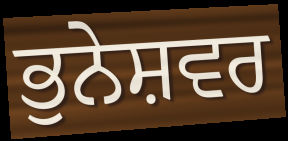
ਭੁਨੇਸ਼ਵਰ